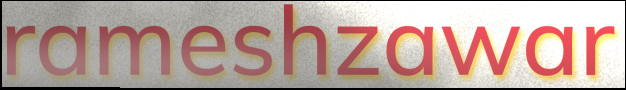
rameshzawar